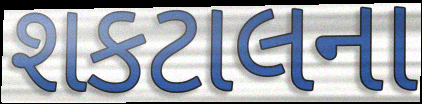
શકટાલના